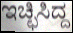
ಇಚ್ಛಿಸಿದ್ದ